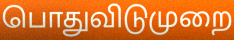
பொதுவிடுமுறை